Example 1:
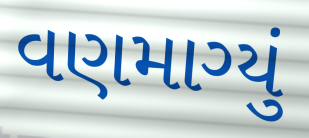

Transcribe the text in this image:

વણમાગ્યું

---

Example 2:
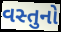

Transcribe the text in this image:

વસ્તુનો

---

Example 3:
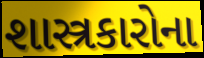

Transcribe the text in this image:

શાસ્ત્રકારોના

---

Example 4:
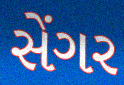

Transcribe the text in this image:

સેંગર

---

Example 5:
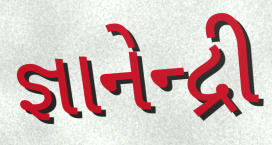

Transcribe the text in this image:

જ્ઞાનેન્દ્રી